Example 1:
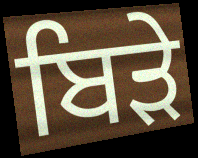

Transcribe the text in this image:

ਬਿੜੇ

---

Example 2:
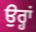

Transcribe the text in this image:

ਉਰ੍ਹਾਂ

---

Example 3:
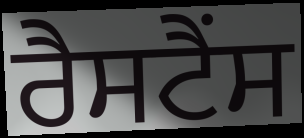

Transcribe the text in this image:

ਰੈਸਟੈਂਸ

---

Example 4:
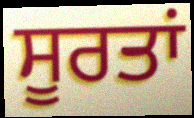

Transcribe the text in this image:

ਸੂਰਤਾਂ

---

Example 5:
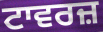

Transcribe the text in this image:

ਟਾਵਰਜ਼